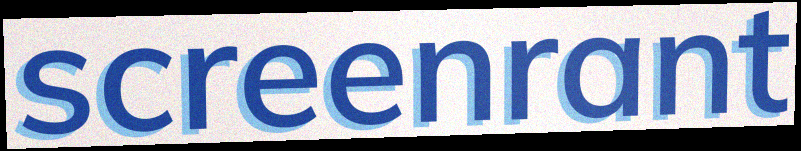
screenrant